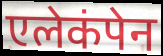
एलेकंपेन